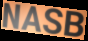
NASB